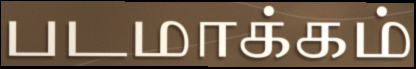
படமாக்கம்